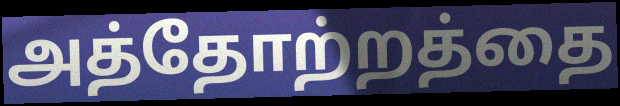
அத்தோற்றத்தை